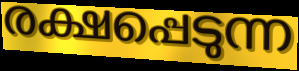
രക്ഷപ്പെടുന്ന